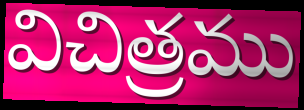
విచిత్రము